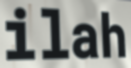
ilah